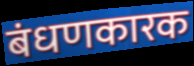
बंधणकारक